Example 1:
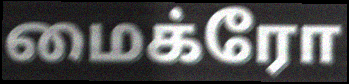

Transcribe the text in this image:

மைக்ரோ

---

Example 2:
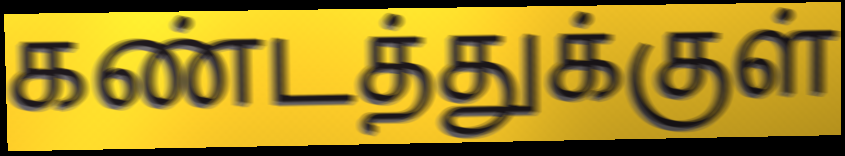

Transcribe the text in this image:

கண்டத்துக்குள்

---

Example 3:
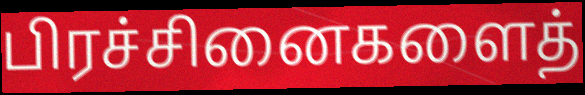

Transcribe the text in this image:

பிரச்சினைகளைத்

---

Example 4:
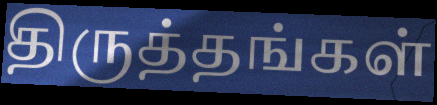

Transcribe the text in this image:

திருத்தங்கள்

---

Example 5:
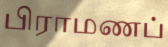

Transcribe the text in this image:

பிராமணப்